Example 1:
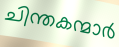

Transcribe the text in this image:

ചിന്തകന്മാർ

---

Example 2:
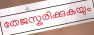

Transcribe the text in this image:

തേജസ്കരിക്കുകയും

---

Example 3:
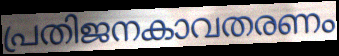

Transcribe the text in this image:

പ്രതിജനകാവതരണം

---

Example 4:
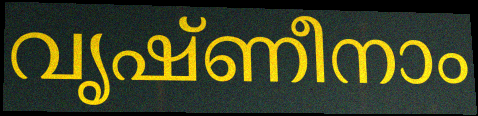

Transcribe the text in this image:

വൃഷ്ണീനാം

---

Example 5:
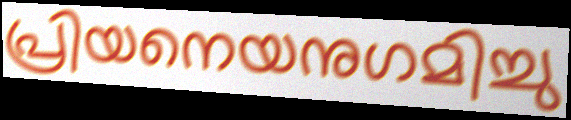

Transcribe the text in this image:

പ്രിയനെയനുഗമിച്ചു